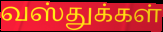
வஸ்துக்கள்